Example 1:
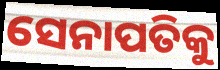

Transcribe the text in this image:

ସେନାପତିକୁ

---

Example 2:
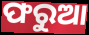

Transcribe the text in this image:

ଫରୁଆ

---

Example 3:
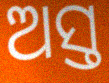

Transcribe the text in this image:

ଅସ୍ତ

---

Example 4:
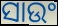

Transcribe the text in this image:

ସାଉଂ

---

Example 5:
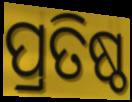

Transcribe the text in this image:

ପ୍ରତିଷ୍ଠ